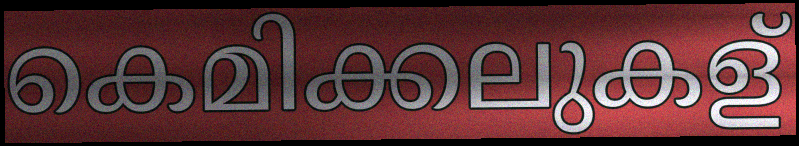
കെമിക്കലുകള്